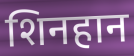
शिनहान